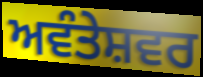
ਅਵੰਤੇਸ਼ਵਰ